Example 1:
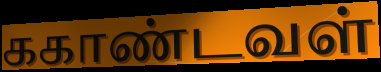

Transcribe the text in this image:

ககாண்டவள்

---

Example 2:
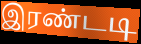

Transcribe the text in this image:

இரண்டடி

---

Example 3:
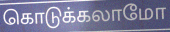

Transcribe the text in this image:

கொடுக்கலாமோ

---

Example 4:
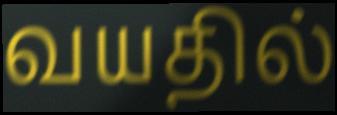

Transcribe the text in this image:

வயதில்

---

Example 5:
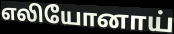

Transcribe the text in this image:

எலியோனாய்